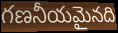
గణనీయమైనది